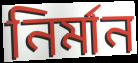
নিৰ্মান